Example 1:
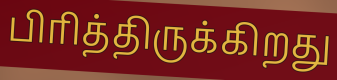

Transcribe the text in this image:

பிரித்திருக்கிறது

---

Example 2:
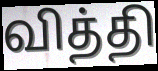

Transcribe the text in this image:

வித்தி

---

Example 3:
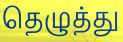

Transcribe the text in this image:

தெழுத்து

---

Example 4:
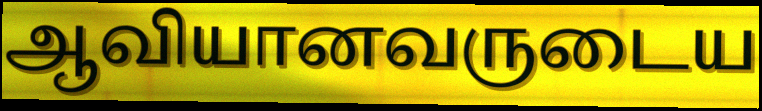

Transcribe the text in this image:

ஆவியானவருடைய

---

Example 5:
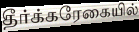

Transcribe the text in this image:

தீர்க்கரேகையில்